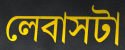
লেবাসটা